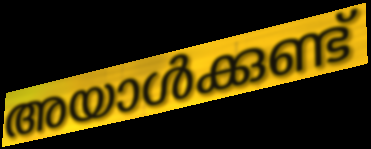
അയാൾക്കുണ്ട്